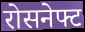
रोसनेफ्ट